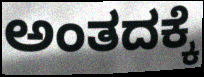
ಅಂತದಕ್ಕೆ